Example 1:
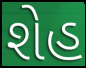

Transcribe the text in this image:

શેહ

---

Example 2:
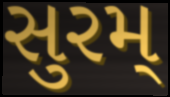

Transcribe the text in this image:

સુરમ્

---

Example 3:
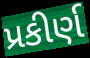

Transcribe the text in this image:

પ્રકીર્ણ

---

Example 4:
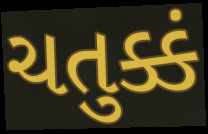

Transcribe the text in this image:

ચતુક્કં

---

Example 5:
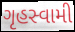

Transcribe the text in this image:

ગૃહસ્વામી